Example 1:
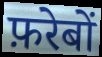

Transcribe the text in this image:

फ़रेबों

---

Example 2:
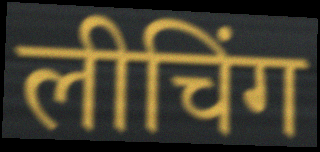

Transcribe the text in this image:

लीचिंग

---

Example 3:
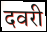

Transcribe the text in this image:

दवरी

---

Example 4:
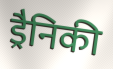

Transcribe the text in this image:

ड्रैनिकी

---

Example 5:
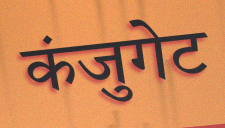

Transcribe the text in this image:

कंजुगेट